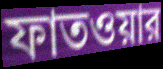
ফাতওয়ার